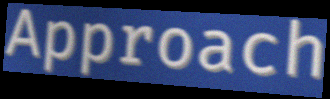
Approach